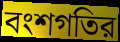
বংশগতির